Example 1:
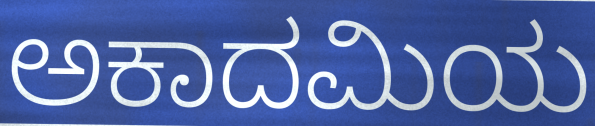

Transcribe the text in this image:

ಅಕಾದಮಿಯ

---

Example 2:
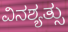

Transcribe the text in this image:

ವಿನಶ್ಯತ್ಸು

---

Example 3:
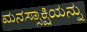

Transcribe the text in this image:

ಮನಸ್ಸಾಕ್ಷಿಯನ್ನು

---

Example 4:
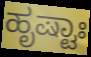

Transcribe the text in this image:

ಹೃಷ್ಟಾಃ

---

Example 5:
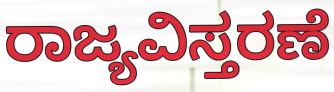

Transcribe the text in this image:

ರಾಜ್ಯವಿಸ್ತರಣೆ